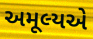
અમૂલ્યએ